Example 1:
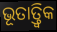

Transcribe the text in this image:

ଭୂତାତ୍ତ୍ୱିକ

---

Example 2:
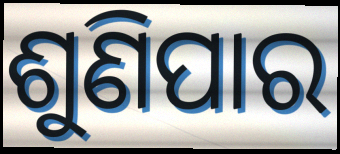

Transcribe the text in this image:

ଶୁଣିପାର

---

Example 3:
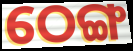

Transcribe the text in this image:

ଠେଙ୍ଗ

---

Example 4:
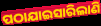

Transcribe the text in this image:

ପଠାଯାଇସାରିଲାଣି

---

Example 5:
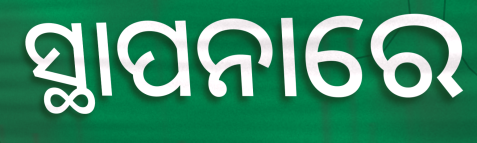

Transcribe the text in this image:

ସ୍ଥାପନାରେ